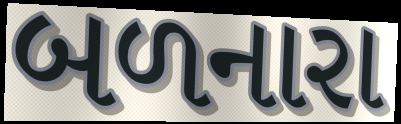
બળનારા